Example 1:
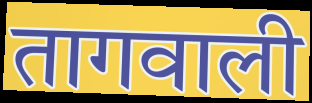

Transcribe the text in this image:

तागवाली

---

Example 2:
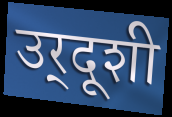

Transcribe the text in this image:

उर्दूशी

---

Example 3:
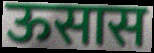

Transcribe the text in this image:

ऊसास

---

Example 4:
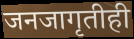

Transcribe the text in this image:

जनजागृतीही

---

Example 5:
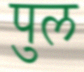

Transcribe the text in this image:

पुल